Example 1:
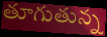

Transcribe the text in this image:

తూగుతున్న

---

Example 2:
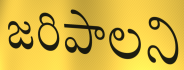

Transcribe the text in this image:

జరిపాలని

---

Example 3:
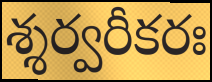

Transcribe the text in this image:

శ్శర్వరీకరః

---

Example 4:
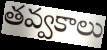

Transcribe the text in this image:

తవ్వకాలు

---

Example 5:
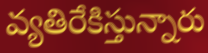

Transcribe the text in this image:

వ్యతిరేకిస్తున్నారు